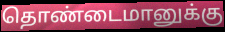
தொண்டைமானுக்கு